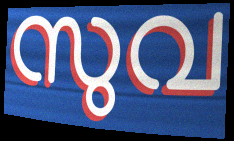
സുവ